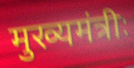
मुख्यमंत्रीः